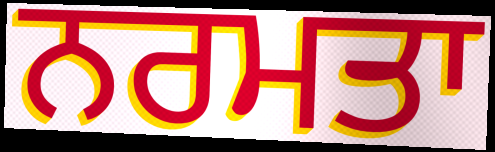
ਨਰਮਤਾ